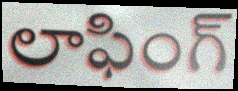
లాఫింగ్